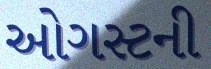
ઓગસ્ટની